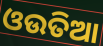
ଓଉତିଆ